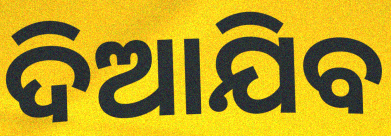
ଦିଆଯିବ